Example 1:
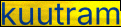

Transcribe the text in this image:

kuutram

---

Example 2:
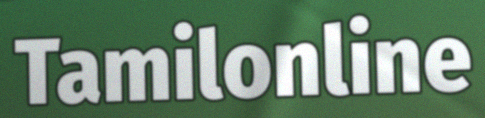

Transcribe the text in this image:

Tamilonline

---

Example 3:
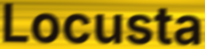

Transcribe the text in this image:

Locusta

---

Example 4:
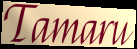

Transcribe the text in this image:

Tamaru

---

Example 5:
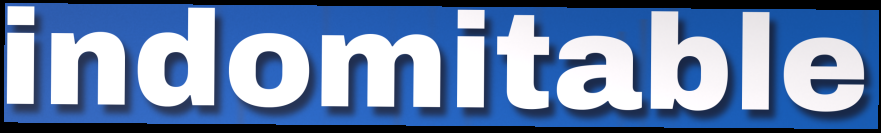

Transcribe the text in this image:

indomitable